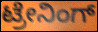
ಟ್ರೇನಿಂಗ್